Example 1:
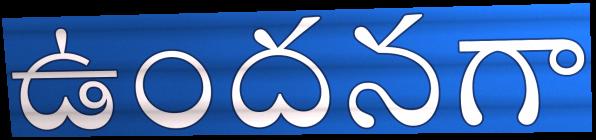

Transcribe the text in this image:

ఉందనగా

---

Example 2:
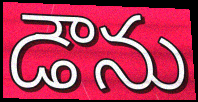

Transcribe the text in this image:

డౌను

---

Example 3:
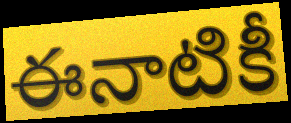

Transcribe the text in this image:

ఈనాటికీ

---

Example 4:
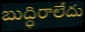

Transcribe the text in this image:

బుద్ధిరాలేదు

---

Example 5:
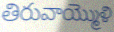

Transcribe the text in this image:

తిరువాయ్మొళి